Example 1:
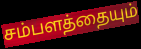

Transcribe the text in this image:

சம்பளத்தையும்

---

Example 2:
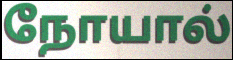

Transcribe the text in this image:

நோயால்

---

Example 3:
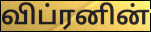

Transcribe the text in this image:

விப்ரனின்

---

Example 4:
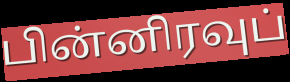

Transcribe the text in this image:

பின்னிரவுப்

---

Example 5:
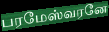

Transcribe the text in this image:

பரமேஸ்வரனே